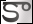
కా